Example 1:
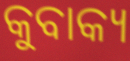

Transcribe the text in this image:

କୁବାକ୍ୟ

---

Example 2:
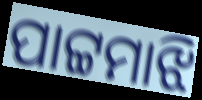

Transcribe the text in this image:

ପାଟ୍ଟମାଝି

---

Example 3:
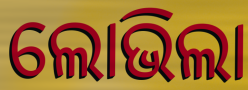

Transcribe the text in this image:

ଲୋଭିଲା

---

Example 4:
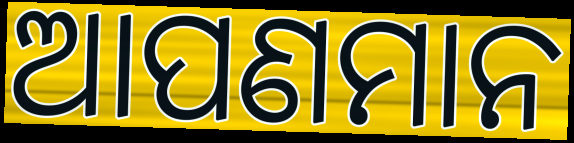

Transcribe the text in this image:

ଆପଣମାନ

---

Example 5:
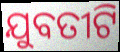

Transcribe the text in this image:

ଯୁବତୀଟି